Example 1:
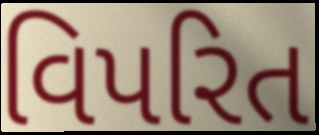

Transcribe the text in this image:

વિપરિત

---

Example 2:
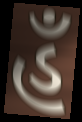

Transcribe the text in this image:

હઁ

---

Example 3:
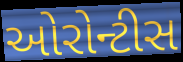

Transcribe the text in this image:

ઓરોન્ટીસ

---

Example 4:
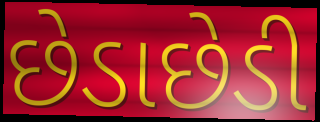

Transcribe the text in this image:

છેડાછેડી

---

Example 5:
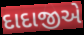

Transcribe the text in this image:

દાદાજીએ